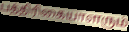
பத்திரிகையாளரும்